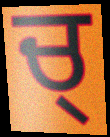
ਚ੍